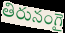
తిరునంగై